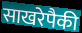
साखरेपैकी